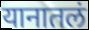
यानातलं